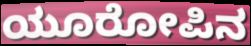
ಯೂರೋಪಿನ